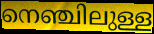
നെഞ്ചിലുള്ള